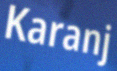
Karanj